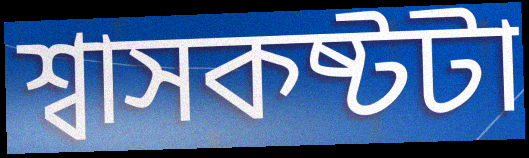
শ্বাসকষ্টটা